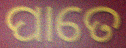
ପାତେ